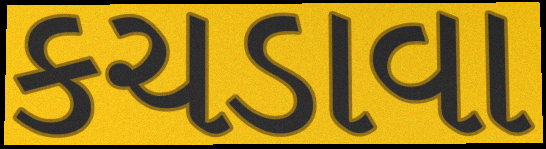
કચડાવા